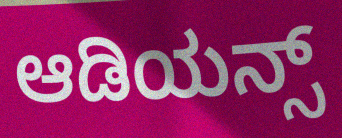
ಆಡಿಯನ್ಸ್